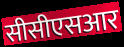
सीसीएसआर